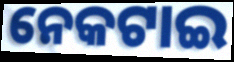
ନେକଟାଇ